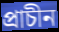
প্রাচীন